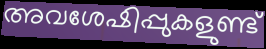
അവശേഷിപ്പുകളുണ്ട്